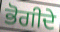
ਭੋਗੀਦੇ